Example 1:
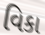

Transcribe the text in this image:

વિકા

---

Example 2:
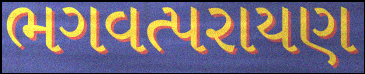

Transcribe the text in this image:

ભગવત્પરાયણ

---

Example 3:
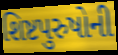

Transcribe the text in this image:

શિષ્ટપુરુષોની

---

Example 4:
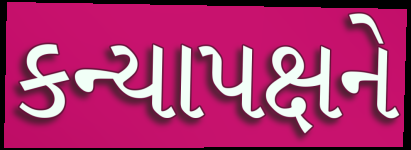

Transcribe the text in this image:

કન્યાપક્ષને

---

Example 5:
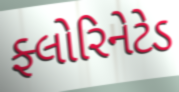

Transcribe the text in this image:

ફ્લોરિનેટેડ